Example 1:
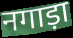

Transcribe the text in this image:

नगाड़ा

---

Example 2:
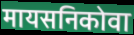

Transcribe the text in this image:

मायसनिकोवा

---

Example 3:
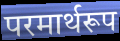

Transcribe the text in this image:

परमार्थरूप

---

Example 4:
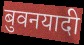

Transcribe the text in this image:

बुवनयादी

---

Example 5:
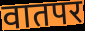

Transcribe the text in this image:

वातपर